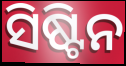
ସିଷ୍ଟିନ